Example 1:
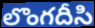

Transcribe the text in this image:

లొంగదీసి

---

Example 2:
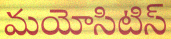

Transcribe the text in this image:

మయోసిటిస్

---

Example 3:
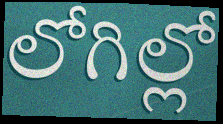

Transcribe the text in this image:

లోగిల్లో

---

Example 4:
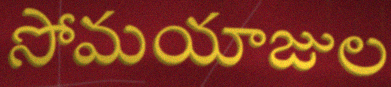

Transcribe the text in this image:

సోమయాజుల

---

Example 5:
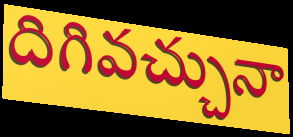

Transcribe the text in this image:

దిగివచ్చునా